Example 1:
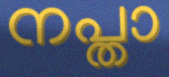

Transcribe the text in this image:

നപ്താ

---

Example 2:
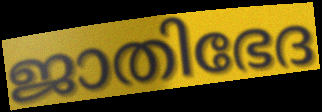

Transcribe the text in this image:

ജാതിഭേദ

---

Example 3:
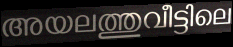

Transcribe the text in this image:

അയലത്തുവീട്ടിലെ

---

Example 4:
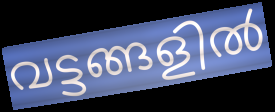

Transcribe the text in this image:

വട്ടങ്ങളിൽ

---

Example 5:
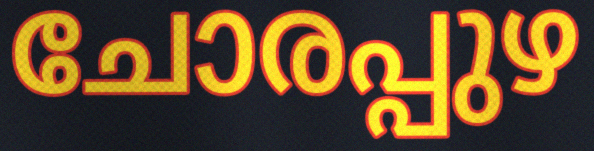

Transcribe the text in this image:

ചോരപ്പുഴ